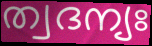
ത്വദന്യഃ